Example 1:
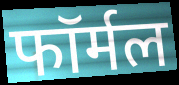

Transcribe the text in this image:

फॉर्मल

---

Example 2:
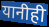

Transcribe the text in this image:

यानीही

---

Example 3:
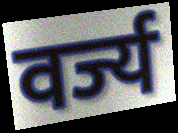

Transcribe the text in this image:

वर्ज्य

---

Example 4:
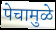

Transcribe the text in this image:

पेचामुळे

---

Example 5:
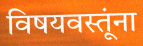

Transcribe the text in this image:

विषयवस्तूंना